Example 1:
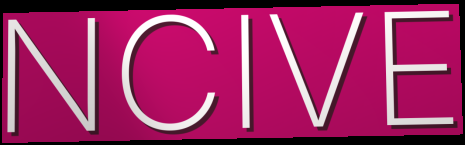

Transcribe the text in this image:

NCIVE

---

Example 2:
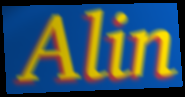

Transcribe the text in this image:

Alin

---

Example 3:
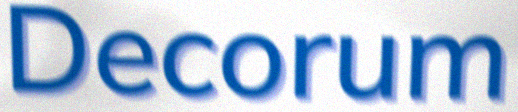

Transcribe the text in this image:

Decorum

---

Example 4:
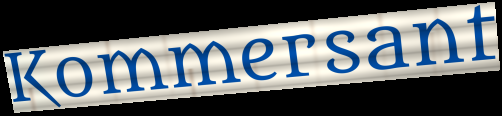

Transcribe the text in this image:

Kommersant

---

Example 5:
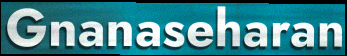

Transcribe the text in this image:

Gnanaseharan